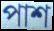
পাশ